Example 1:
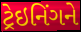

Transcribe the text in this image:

ટ્રેઇનિંગને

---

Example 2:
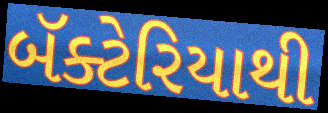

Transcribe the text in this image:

બૅક્ટેરિયાથી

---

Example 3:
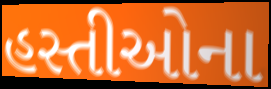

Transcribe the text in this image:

હસ્તીઓના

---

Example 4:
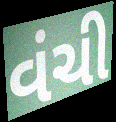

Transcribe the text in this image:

વંચી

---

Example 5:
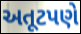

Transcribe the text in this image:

અતૂટપણે